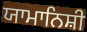
ਯਾਮਾਨਿਸ਼ੀ